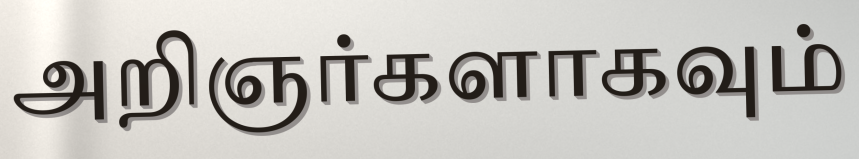
அறிஞர்களாகவும்